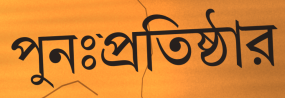
পুনঃপ্রতিষ্ঠার